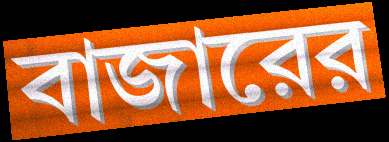
বাজারের